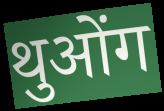
थुओंग